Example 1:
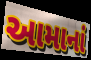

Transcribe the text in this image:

આમાનાં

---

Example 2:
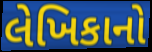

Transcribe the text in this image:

લેખિકાનો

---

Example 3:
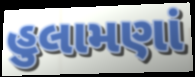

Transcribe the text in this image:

હુલામણાં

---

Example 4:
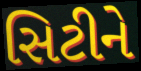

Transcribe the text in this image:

સિટીને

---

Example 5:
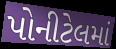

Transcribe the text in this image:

પોનીટેલમાં